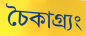
চৈকাগ্র্যং